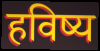
हविष्य